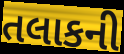
તલાકની